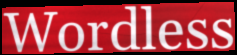
Wordless